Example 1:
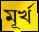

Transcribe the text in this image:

মূর্খ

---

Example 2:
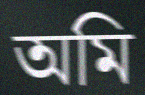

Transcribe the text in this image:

অমি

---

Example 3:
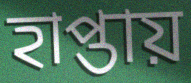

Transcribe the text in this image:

হাপ্তায়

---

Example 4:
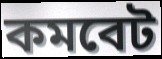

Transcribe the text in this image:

কমবেট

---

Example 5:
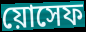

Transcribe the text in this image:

য়োসেফ